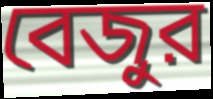
বেজুর